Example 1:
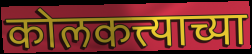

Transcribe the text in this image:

कोलकत्त्याच्या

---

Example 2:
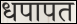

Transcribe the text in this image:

धपापत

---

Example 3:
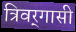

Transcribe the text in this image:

त्रिवर्गासी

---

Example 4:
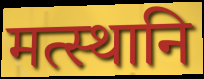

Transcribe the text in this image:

मत्स्थानि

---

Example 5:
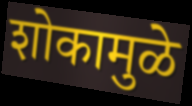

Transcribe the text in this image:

शोकामुळे